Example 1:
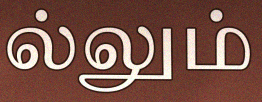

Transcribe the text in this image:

ல்லும்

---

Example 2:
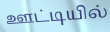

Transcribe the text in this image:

ஊட்டியில்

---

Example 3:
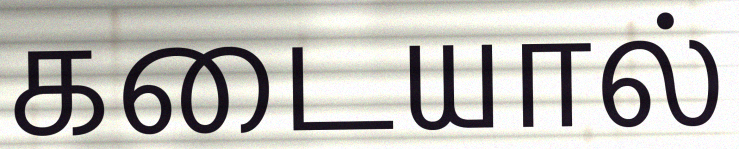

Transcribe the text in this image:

கடையால்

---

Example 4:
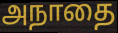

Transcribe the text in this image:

அநாதை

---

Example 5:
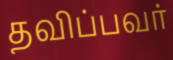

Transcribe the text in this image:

தவிப்பவர்